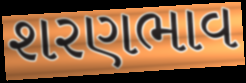
શરણભાવ